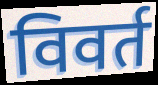
विवर्त